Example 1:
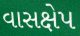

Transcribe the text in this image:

વાસક્ષેપ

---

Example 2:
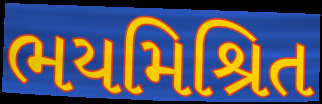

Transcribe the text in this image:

ભયમિશ્રિત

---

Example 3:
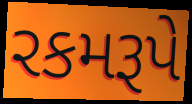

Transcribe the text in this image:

રકમરૂપે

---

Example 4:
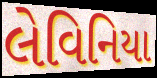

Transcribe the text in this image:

લેવિનિયા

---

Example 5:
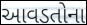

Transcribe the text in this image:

આવડતોના